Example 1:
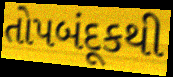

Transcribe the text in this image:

તોપબંદૂકથી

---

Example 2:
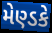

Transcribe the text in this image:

મેણ્ડકે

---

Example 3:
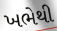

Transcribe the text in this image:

ખભેથી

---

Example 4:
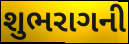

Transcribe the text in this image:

શુભરાગની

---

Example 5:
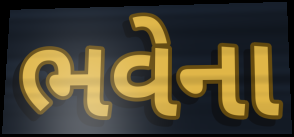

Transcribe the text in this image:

ભવેના